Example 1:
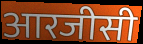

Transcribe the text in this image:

आरजीसी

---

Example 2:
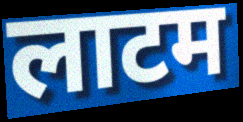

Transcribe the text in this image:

लाटम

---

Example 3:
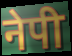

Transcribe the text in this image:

नेपी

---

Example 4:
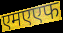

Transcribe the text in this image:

एमएएफ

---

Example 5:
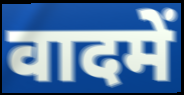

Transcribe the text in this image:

वादमें